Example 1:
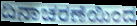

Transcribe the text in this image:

ದಿನಾಚರಣೆಯಿಂದ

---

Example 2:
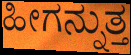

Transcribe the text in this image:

ಹೀಗನ್ನುತ್ತ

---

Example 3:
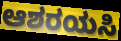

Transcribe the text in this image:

ಆಶರಯಸಿ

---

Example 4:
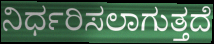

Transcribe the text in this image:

ನಿರ್ಧರಿಸಲಾಗುತ್ತದೆ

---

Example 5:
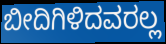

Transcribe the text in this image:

ಬೀದಿಗಿಳಿದವರಲ್ಲ